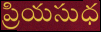
ప్రియసుధ